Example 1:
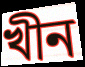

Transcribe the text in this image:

খীন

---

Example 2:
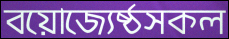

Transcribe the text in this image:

বয়োজ্যেষ্ঠসকল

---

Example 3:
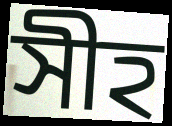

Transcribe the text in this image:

সীহ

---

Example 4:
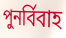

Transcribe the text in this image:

পুনৰ্বিবাহ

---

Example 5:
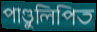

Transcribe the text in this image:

পাণ্ডুলিপিত